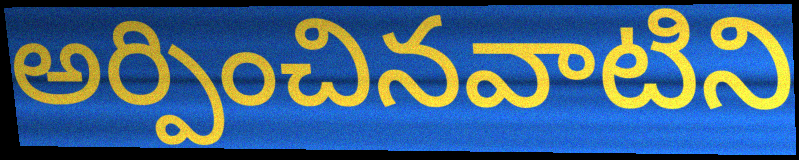
అర్పించినవాటిని